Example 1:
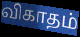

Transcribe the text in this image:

விகாதம்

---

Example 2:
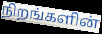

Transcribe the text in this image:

நிறங்களின்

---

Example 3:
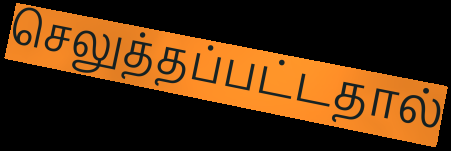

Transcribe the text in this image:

செலுத்தப்பட்டதால்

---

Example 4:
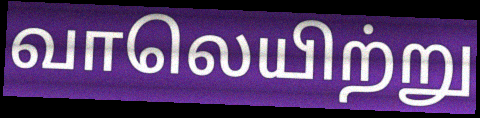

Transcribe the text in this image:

வாலெயிற்று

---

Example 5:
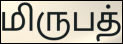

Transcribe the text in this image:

மிருபத்